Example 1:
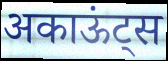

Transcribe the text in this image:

अकाऊंट्स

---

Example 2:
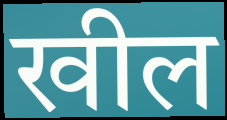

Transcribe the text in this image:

खील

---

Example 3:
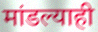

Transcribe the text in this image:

मांडल्याही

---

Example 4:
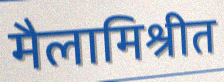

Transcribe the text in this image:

मैलामिश्रीत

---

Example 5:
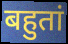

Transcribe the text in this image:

बहुतां